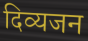
दिव्यजन